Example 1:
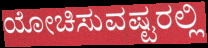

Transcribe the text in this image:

ಯೋಚಿಸುವಷ್ಟರಲ್ಲಿ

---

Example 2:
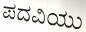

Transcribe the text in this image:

ಪದವಿಯು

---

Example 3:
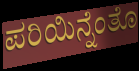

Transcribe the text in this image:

ಪರಿಯಿನ್ನೆಂತೊ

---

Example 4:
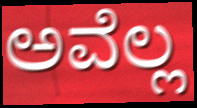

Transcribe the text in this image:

ಅವೆಲ್ಲ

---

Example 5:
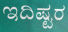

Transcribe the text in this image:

ಇದಿಷ್ಟರ